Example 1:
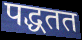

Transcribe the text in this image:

पद्धतत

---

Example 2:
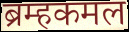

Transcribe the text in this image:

ब्रम्हकमल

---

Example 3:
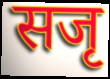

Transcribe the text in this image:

सजृ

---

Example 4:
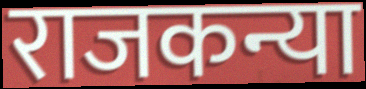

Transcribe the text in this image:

राजकन्या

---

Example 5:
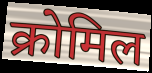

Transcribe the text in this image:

क्रोमिल